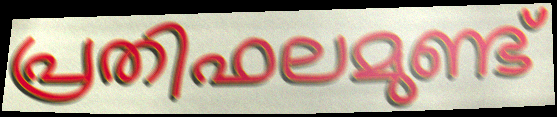
പ്രതിഫലമുണ്ട്